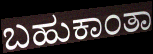
ಬಹುಕಾಂತಾ